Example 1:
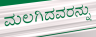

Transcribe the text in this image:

ಮಲಗಿದವರನ್ನು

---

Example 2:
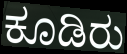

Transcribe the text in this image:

ಕೂಡಿರು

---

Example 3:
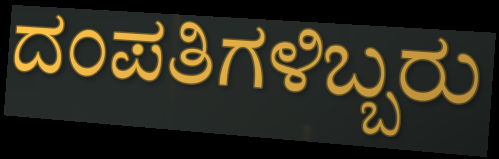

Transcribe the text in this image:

ದಂಪತಿಗಳಿಬ್ಬರು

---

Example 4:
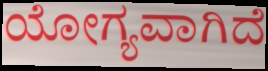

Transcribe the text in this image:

ಯೋಗ್ಯವಾಗಿದೆ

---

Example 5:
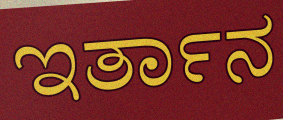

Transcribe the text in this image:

ಇರ್ತಾನ